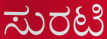
ಸುರಟಿ